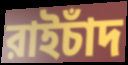
রাইচাঁদ